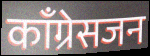
काँग्रेसजन